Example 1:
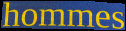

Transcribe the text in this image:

hommes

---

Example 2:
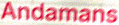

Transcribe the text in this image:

Andamans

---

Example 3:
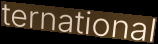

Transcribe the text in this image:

ternational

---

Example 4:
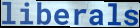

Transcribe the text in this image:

liberals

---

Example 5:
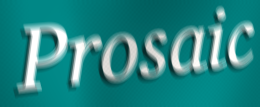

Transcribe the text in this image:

Prosaic